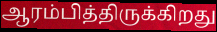
ஆரம்பித்திருக்கிறது